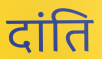
दांति